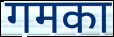
गमका